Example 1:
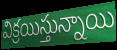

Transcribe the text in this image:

విక్రయిస్తున్నాయి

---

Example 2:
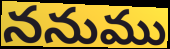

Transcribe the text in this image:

ననుము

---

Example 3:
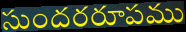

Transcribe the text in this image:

సుందరరూపము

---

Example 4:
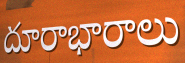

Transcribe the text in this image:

దూరాభారాలు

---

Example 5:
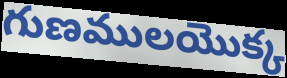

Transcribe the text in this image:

గుణములయొక్క